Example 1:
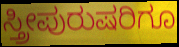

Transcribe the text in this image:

ಸ್ತ್ರೀಪುರುಷರಿಗೂ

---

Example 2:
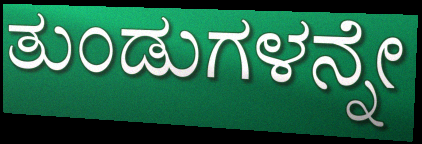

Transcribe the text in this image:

ತುಂಡುಗಳನ್ನೇ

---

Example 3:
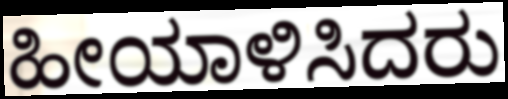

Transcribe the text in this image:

ಹೀಯಾಳಿಸಿದರು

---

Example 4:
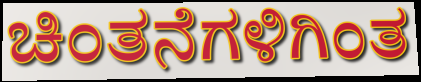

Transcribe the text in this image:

ಚಿಂತನೆಗಳಿಗಿಂತ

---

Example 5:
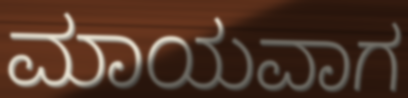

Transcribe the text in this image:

ಮಾಯವಾಗ